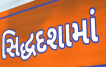
સિદ્ધદશામાં